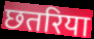
छतरिया